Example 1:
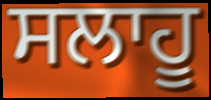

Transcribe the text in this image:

ਸਲਾਹੂ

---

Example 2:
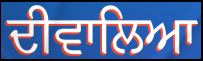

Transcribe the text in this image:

ਦੀਵਾਲਿਆ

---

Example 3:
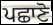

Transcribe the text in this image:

ਪਛਾਣੋ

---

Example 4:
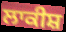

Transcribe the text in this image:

ਲਾਕੀਸ਼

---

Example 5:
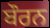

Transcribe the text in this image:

ਬੌਰਨ